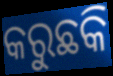
କରୁଛକି